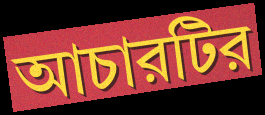
আচারটির